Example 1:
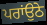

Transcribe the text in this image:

ਪਰਾਂਉਠੇ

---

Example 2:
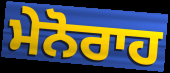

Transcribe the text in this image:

ਮੇਨੋਰਾਹ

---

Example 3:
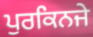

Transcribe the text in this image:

ਪੁਰਕਿਨਜੇ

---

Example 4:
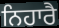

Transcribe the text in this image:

ਨਿਹਾਰੈ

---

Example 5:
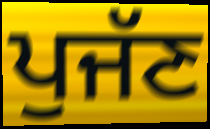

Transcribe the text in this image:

ਪੁਜੱਣ